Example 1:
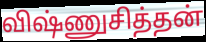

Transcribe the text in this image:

விஷ்ணுசித்தன்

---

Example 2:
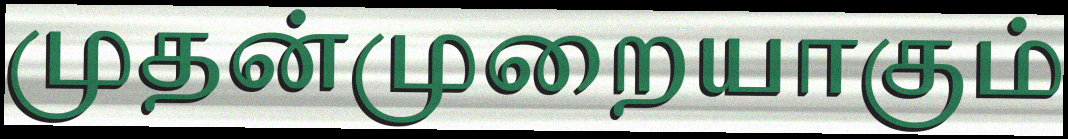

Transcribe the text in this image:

முதன்முறையாகும்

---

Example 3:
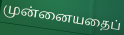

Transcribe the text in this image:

முன்னையதைப்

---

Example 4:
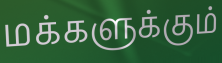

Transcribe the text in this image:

மக்களுக்கும்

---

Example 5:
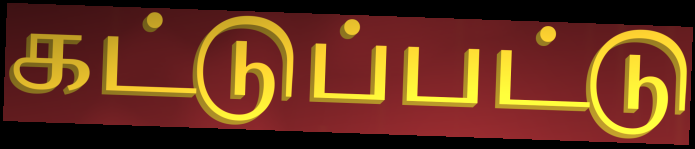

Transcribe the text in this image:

கட்டுப்பட்டு